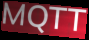
MQTT